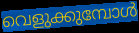
വെളുക്കുമ്പോൾ